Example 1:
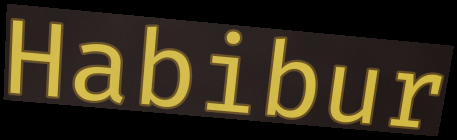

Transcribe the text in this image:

Habibur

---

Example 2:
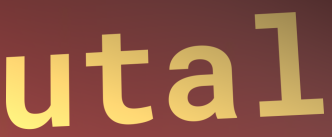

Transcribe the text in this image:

utal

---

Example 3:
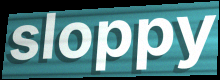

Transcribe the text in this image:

sloppy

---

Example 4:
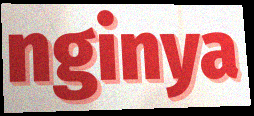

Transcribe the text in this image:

nginya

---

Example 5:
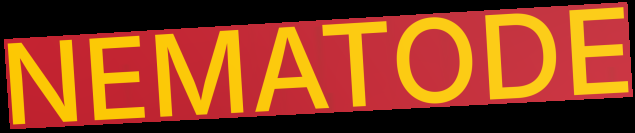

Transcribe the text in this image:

NEMATODE